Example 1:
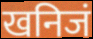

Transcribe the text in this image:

खनिजं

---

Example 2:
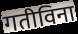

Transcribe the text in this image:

गतीविना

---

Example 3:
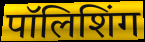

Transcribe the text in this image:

पॉलिशिंग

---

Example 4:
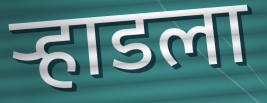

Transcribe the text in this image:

ऱ्हाडला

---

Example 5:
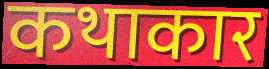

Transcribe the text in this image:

कथाकार